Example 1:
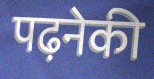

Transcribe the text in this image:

पढ़नेकी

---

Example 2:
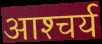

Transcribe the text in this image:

आश्‍चर्य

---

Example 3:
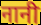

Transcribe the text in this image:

नानी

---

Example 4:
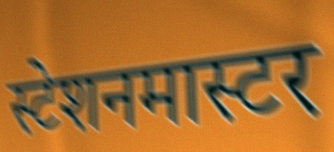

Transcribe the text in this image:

स्टेशनमास्टर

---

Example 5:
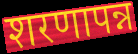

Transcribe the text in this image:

शरणापन्न